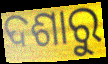
ଦଶାରୁ